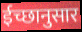
ईच्छानुसार